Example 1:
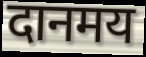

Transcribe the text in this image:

दानमय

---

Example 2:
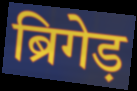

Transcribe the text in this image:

ब्रिगेड़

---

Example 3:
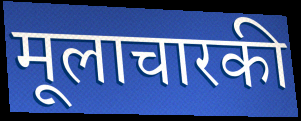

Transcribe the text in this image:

मूलाचारकी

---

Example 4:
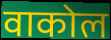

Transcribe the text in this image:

वाकोल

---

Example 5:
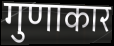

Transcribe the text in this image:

गुणाकार